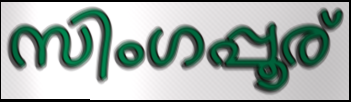
സിംഗപ്പൂര്